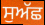
ਸੁਅੱਛ